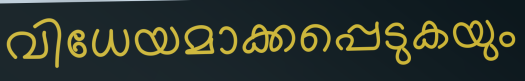
വിധേയമാക്കപ്പെടുകയും